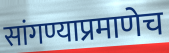
सांगण्याप्रमाणेच